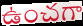
ఉంచగా